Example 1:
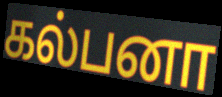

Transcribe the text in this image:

கல்பனா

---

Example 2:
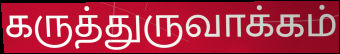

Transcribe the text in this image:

கருத்துருவாக்கம்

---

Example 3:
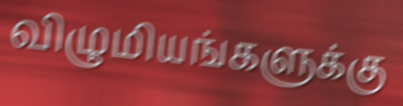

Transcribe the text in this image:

விழுமியங்களுக்கு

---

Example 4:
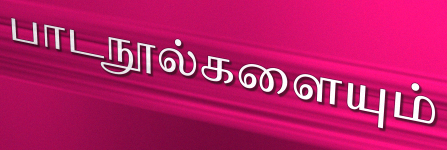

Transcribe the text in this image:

பாடநூல்களையும்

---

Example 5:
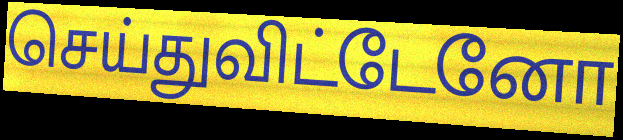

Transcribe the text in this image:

செய்துவிட்டேனோ